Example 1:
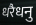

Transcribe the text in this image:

धरैधनु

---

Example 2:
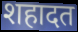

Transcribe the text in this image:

शहादत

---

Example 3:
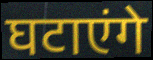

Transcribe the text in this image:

घटाएंगे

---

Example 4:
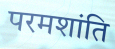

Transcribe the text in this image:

परमशांति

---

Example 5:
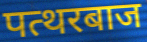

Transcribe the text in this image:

पत्थरबाज